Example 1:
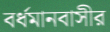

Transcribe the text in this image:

বর্ধমানবাসীর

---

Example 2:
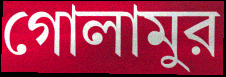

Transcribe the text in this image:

গোলামুর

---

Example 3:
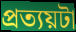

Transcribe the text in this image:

প্রত্যয়টা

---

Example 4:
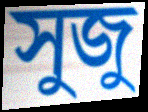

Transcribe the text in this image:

সুজু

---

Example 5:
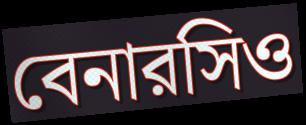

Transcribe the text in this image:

বেনারসিও